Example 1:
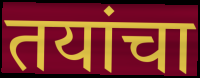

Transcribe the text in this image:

तयांचा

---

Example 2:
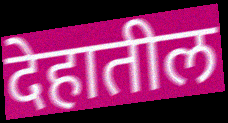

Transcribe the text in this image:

देहातील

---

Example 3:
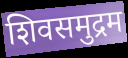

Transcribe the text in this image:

शिवसमुद्रम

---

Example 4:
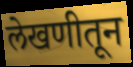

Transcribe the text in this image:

लेखणीतून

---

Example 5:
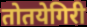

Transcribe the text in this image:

तोतयेगिरी